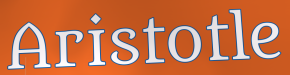
Aristotle